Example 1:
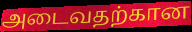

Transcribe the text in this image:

அடைவதற்கான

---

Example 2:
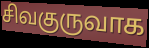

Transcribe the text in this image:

சிவகுருவாக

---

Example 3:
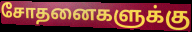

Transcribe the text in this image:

சோதனைகளுக்கு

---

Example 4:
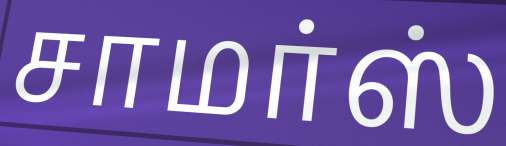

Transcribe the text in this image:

சாமர்ஸ்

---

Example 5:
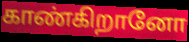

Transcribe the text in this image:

காண்கிறானோ